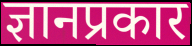
ज्ञानप्रकार